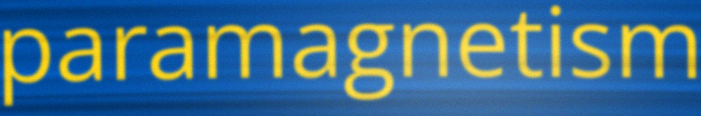
paramagnetism